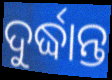
ଦୁର୍ଦ୍ଧାନ୍ତ